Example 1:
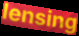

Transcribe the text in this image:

lensing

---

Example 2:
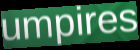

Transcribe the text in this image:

umpires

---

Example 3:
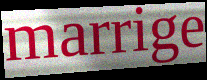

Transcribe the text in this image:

marrige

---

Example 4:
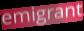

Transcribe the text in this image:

emigrant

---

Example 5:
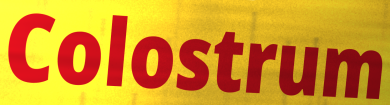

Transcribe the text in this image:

Colostrum